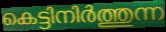
കെട്ടിനിർത്തുന്ന